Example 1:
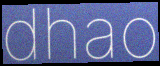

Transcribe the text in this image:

dhao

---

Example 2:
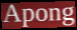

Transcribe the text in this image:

Apong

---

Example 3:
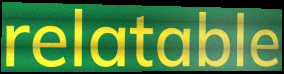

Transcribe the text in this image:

relatable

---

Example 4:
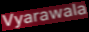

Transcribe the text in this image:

Vyarawala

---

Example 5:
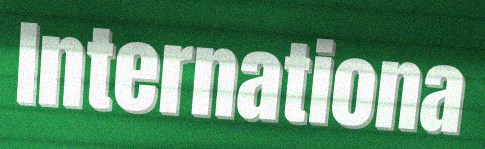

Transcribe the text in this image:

Internationa